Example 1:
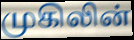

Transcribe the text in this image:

முகிலின்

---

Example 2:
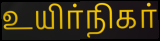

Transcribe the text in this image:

உயிர்நிகர்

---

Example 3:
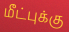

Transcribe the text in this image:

மீட்புக்கு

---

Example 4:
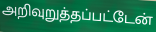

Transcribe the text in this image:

அறிவுறுத்தப்பட்டேன்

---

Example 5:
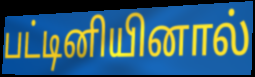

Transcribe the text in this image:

பட்டினியினால்